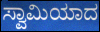
ಸ್ವಾಮಿಯಾದ